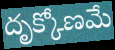
దృక్కోణమే